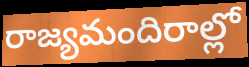
రాజ్యమందిరాల్లో